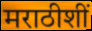
मराठीशीं